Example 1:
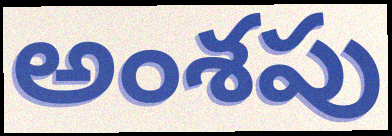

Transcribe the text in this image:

అంశపు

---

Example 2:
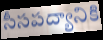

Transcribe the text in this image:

సీసపద్యానికి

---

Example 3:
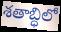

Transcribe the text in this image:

శతాబ్ధిలో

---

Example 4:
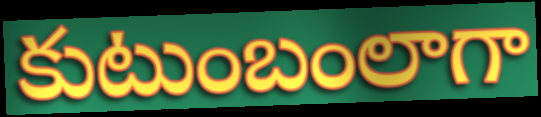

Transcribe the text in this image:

కుటుంబంలాగా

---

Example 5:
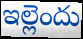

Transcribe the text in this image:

ఇల్లెందు